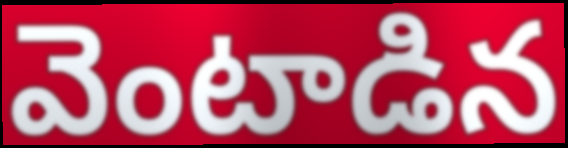
వెంటాడిన